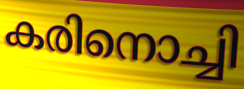
കരിനൊച്ചി